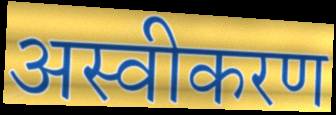
अस्वीकरण